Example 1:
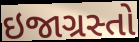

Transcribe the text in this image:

ઇજાગ્રસ્તો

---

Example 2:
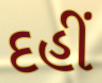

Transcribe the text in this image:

દહીં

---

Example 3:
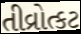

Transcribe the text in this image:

તીવ્રોત્કટ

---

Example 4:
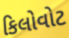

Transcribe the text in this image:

કિલોવોટ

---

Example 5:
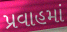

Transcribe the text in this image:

પ્રવાહમાં